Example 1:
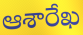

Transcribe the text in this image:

ఆశారేఖ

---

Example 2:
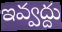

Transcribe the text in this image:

ఇవ్వద్దు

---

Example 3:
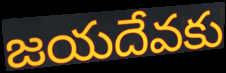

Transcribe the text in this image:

జయదేవకు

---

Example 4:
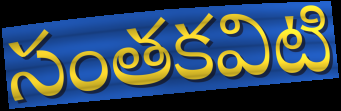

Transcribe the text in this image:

సంతకవిటి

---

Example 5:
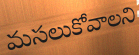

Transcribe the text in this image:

మసలుకోవాలని